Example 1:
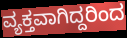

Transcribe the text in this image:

ವ್ಯಕ್ತವಾಗಿದ್ದರಿಂದ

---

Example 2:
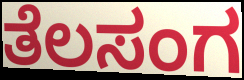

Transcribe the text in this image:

ತೆಲಸಂಗ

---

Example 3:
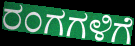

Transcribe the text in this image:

ರಂಗಗಳಿಗೆ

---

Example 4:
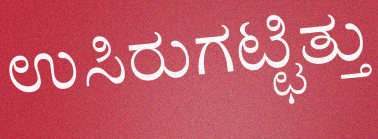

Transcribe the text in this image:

ಉಸಿರುಗಟ್ಟಿತ್ತು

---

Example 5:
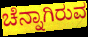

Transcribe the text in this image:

ಚೆನ್ನಾಗಿರುವ